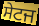
ਸੇਟਜ